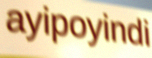
ayipoyindi